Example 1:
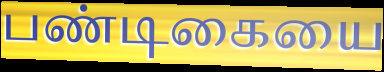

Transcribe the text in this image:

பண்டிகையை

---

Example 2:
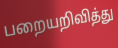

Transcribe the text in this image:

பறையறிவித்து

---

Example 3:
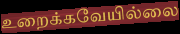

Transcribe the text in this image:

உறைக்கவேயில்லை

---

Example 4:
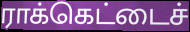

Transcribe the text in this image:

ராக்கெட்டைச்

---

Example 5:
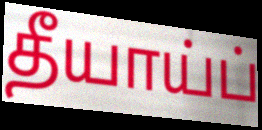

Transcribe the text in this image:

தீயாய்ப்